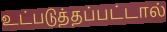
உட்படுத்தப்பட்டால்